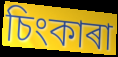
চিংকাৰা